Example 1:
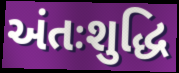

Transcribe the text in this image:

અંતઃશુદ્ધિ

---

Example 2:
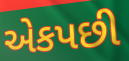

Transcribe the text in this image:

એકપછી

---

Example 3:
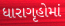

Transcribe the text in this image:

ધારાગૃહોમાં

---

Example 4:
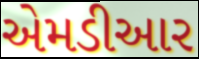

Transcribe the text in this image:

એમડીઆર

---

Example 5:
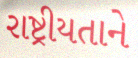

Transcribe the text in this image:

રાષ્ટ્રીયતાને